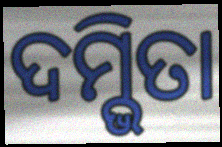
ଦମ୍ଭିତା